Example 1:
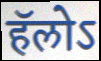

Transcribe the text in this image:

हॅलोऽ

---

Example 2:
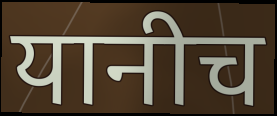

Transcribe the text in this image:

यानीच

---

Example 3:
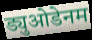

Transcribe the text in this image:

ड्युओडेनम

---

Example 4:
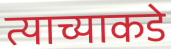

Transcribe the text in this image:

त्याच्याकडे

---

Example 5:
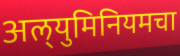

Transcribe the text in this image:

अल्युमिनियमचा